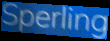
Sperling